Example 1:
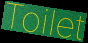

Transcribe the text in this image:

Toilet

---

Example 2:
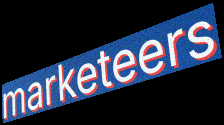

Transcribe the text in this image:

marketeers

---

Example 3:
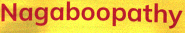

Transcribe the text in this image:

Nagaboopathy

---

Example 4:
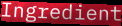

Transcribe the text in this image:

Ingredient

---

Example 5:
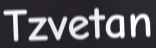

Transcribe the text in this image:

Tzvetan